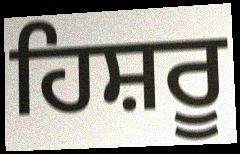
ਹਿਸ਼ਰੂ